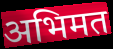
अभिमत